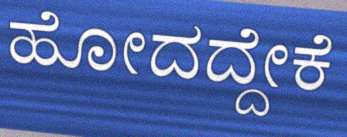
ಹೋದದ್ದೇಕೆ